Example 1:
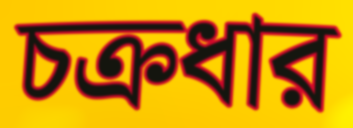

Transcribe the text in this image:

চক্রধার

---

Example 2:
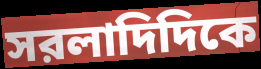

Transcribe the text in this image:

সরলাদিদিকে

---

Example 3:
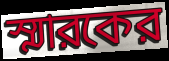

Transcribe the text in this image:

স্মারকের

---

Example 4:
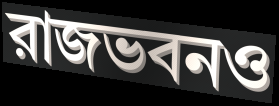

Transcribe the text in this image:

রাজভবনও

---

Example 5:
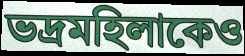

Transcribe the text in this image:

ভদ্রমহিলাকেও